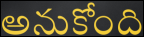
అనుకోంది